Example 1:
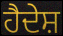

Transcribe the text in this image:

ਹੈਦੇਸ਼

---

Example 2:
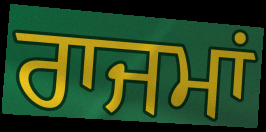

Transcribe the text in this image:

ਰਾਜਮਾਂ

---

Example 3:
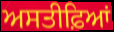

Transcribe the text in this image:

ਅਸਤੀਫ਼ਿਆਂ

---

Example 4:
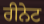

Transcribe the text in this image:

ਰੀਨੇਟ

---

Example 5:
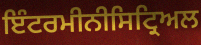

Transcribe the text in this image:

ਇੰਟਰਮੀਨੀਸਿਟ੍ਰਿਅਲ